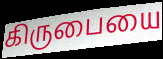
கிருபையை